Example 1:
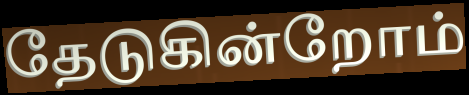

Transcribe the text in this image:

தேடுகின்றோம்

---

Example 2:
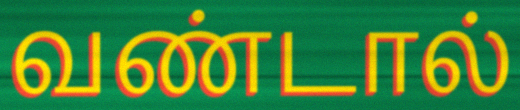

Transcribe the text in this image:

வண்டால்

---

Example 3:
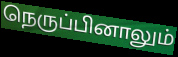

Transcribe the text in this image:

நெருப்பினாலும்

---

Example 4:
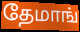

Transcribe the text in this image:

தேமாங்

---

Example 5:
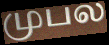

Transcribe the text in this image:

முபல